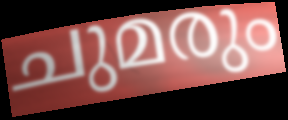
ചുമരും